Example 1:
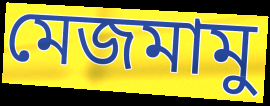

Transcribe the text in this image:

মেজমামু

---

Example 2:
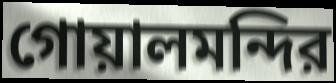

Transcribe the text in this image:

গোয়ালমন্দির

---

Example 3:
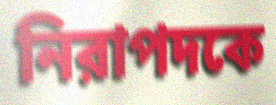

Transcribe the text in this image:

নিরাপদকে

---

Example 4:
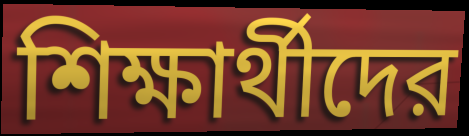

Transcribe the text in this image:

শিক্ষার্থীদের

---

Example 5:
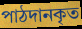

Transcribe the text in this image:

পাঠদানকৃত